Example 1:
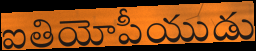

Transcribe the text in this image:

ఐతియోపీయుడు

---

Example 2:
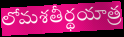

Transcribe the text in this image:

లోమశతీర్థయాత్ర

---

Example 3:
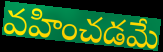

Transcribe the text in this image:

వహించడమే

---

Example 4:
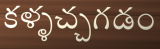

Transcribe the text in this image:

కళ్ళచ్చగడం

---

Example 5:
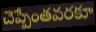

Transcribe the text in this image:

చెప్పేంతవరకూ